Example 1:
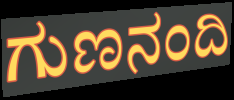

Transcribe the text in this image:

ಗುಣನಂದಿ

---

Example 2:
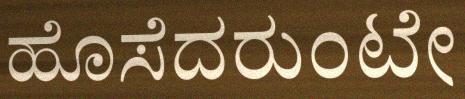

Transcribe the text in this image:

ಹೊಸೆದರುಂಟೇ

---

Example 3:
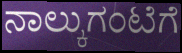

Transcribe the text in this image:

ನಾಲ್ಕುಗಂಟೆಗೆ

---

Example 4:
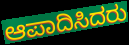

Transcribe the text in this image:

ಆಪಾದಿಸಿದರು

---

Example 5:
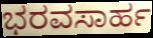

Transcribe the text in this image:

ಭರವಸಾರ್ಹ